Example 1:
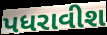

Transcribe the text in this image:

પધરાવીશ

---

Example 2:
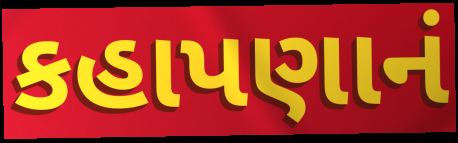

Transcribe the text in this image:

કહાપણાનં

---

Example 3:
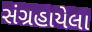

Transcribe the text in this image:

સંગ્રહાયેલા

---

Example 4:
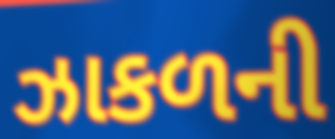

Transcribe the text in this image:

ઝાકળની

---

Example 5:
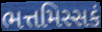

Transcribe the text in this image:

ભત્તમિસ્સકં